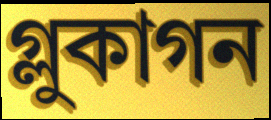
গ্লুকাগন